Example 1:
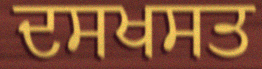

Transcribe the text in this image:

ਦਸਖਸਤ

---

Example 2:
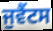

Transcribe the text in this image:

ਜੁਵੈਂਟਸ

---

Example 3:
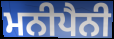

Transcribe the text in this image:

ਮਨੀਪੈਨੀ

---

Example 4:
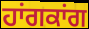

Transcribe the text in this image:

ਹਾਂਗਕਾਂਗ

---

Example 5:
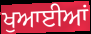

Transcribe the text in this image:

ਖੁਆਈਆਂ